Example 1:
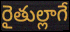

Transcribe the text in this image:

రైతుల్లాగే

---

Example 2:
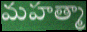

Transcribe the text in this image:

మహత్మా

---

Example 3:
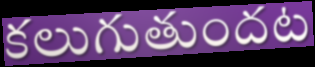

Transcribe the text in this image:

కలుగుతుందట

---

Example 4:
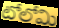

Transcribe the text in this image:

టోలోమి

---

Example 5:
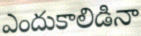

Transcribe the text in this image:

ఎందుకాలిడినా